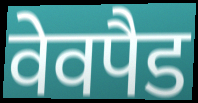
वेवपैड